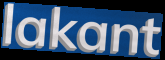
lakant